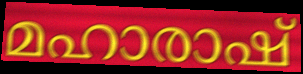
മഹാരാഷ്